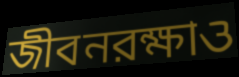
জীবনরক্ষাও